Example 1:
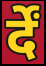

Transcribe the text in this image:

र्दें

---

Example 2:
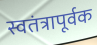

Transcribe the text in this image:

स्वतंत्रापूर्वक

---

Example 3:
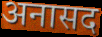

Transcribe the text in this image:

अनासद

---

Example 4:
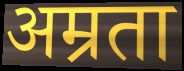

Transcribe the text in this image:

अम्रता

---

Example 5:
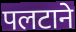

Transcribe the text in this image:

पलटाने